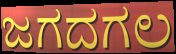
ಜಗದಗಲ